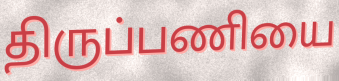
திருப்பணியை